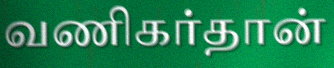
வணிகர்தான்